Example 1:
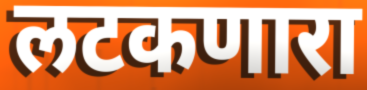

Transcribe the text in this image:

लटकणारा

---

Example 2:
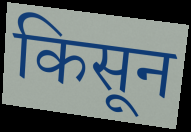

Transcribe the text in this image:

किसून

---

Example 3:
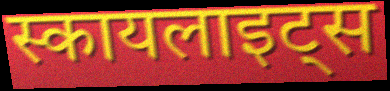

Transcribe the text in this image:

स्कायलाइट्स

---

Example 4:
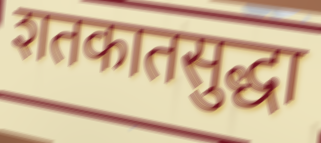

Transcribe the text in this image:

शतकातसुद्धा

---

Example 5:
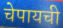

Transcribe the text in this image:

चेपायची